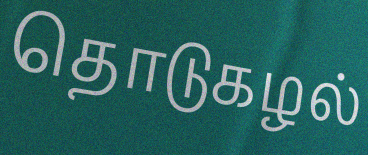
தொடுகழல்